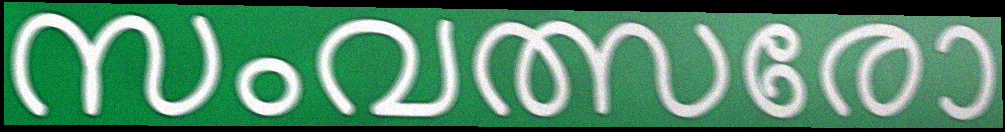
സംവത്സരോ